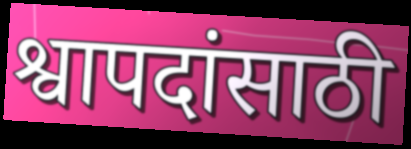
श्वापदांसाठी